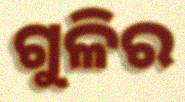
ଗୁଳିର